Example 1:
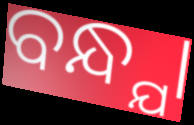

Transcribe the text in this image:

ବନ୍ଧ୍ଯା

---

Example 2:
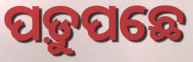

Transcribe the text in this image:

ପଡ଼ୁପଛେ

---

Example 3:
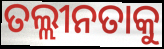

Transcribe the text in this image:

ତଲ୍ଲୀନତାକୁ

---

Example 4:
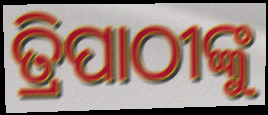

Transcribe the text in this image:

ତ୍ରିପାଠୀଙ୍କୁ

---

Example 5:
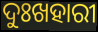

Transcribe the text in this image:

ଦୁଃଖହାରୀ